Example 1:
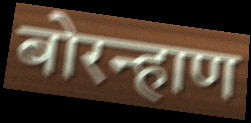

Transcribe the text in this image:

बोरन्हाण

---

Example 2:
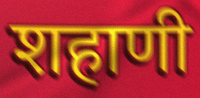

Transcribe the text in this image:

शहाणी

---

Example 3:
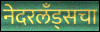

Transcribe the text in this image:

नेदरलँड्सचा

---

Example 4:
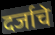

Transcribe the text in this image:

दर्जाचे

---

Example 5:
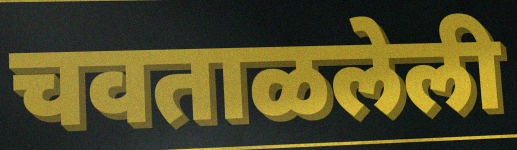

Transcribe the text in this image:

चवताळलेली